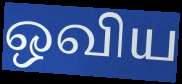
ஒவிய